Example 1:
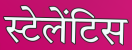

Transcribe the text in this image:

स्टेलेंटिस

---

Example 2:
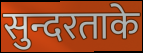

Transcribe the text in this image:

सुन्दरताके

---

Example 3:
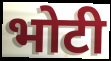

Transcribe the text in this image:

भोटी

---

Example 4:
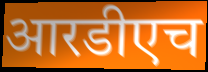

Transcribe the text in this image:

आरडीएच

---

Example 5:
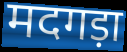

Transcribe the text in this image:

मदगड़ा